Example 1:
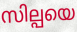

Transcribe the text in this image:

സില്പയെ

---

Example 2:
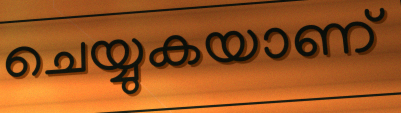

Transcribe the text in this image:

ചെയ്യുകയാണ്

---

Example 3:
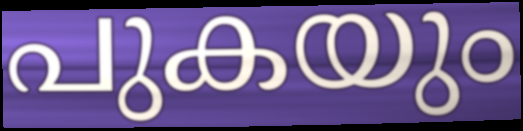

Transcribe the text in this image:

പുകയും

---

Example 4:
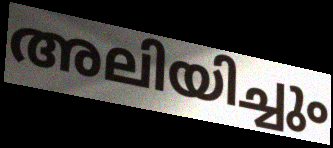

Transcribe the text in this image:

അലിയിച്ചും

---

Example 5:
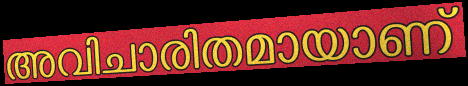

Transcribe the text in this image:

അവിചാരിതമായാണ്